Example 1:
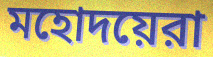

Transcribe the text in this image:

মহোদয়েরা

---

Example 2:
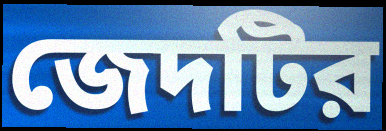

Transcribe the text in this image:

জেদটির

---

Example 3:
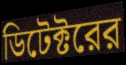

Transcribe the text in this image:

ডিটেক্টরের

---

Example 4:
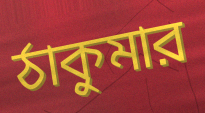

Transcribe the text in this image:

ঠাকুমার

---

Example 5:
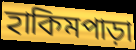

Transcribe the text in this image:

হাকিমপাড়া